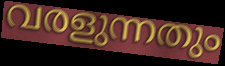
വരളുന്നതും